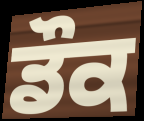
ਡੌਕ